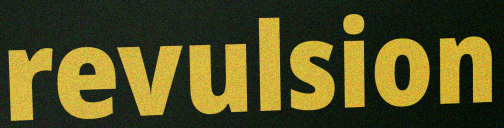
revulsion